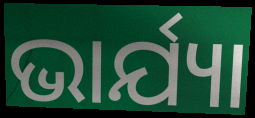
ଭାର୍ଯ୍ୟା